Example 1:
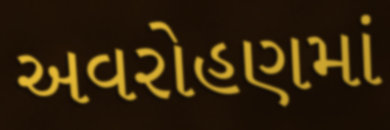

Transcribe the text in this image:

અવરોહણમાં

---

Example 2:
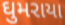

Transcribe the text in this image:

ઘુમરાયા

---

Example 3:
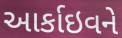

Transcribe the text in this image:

આર્કાઇવને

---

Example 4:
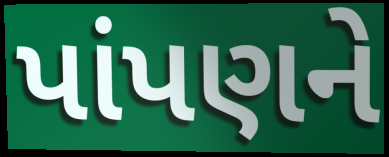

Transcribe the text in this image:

પાંપણને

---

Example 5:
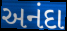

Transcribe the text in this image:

અનંદા